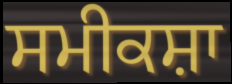
ਸਮੀਕਸ਼ਾ